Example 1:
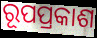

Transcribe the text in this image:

ରୂପପ୍ରକାଶ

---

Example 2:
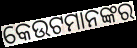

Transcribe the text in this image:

କେଉଟମାନଙ୍କର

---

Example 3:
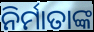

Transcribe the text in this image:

ନିର୍ମାତାଙ୍କ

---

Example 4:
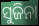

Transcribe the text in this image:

ସୁଜିନା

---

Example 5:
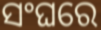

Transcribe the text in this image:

ସଂଘରେ